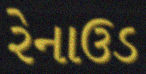
રેનાઉડ